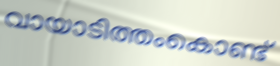
വായാടിത്തംകൊണ്ട്